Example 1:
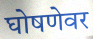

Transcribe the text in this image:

घोषणेवर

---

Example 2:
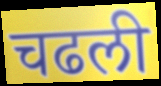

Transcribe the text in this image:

चढली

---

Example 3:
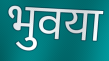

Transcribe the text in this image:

भुवया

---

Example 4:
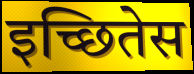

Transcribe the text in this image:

इच्छितेस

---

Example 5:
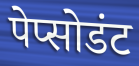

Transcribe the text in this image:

पेप्सोडंट